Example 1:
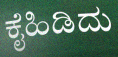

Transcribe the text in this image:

ಕೈಹಿಡಿದು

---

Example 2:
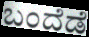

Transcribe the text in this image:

ಬಂದೆಡೆ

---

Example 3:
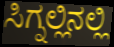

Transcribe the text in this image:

ಸಿಗ್ನಲ್ಲಿನಲ್ಲಿ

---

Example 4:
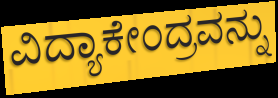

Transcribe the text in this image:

ವಿದ್ಯಾಕೇಂದ್ರವನ್ನು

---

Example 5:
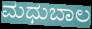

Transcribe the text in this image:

ಮಧುಬಾಲ